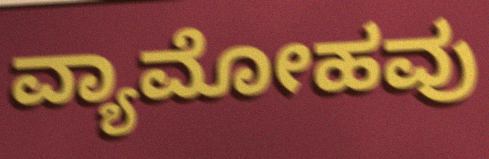
ವ್ಯಾಮೋಹವು